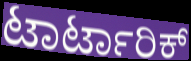
ಟಾರ್ಟಾರಿಕ್